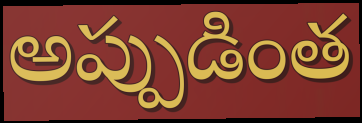
అప్పుడింత